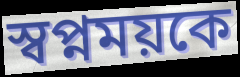
স্বপ্নময়কে